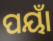
ପୟାଁ